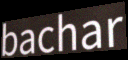
bachar